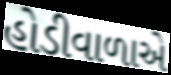
હોડીવાળાએ